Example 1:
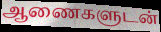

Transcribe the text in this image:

ஆணைகளுடன்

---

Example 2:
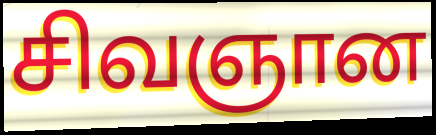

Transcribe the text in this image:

சிவஞான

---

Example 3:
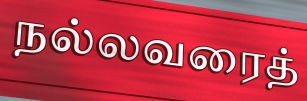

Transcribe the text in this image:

நல்லவரைத்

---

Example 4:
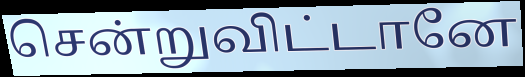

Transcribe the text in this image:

சென்றுவிட்டானே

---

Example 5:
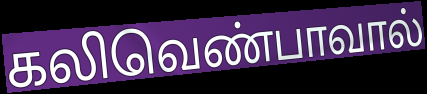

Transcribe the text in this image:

கலிவெண்பாவால்